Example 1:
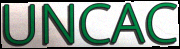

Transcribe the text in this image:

UNCAC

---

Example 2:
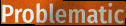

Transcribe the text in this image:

Problematic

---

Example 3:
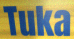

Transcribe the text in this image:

Tuka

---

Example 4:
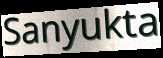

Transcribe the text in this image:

Sanyukta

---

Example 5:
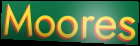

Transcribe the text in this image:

Moores